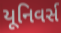
યૂનિવર્સ